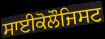
ਸਾਈਕੋਲੌਜਿਸਟ